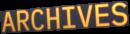
ARCHIVES